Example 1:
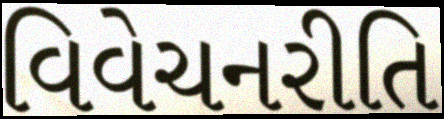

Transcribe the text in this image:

વિવેચનરીતિ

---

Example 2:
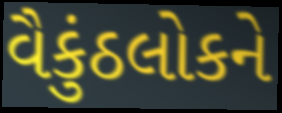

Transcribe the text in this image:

વૈકુંઠલોકને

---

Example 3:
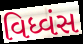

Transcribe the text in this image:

વિધ્વંસ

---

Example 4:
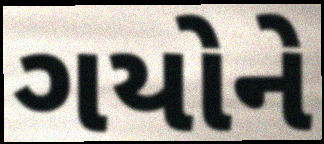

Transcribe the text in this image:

ગયોને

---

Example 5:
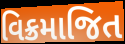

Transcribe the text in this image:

વિક્રમાજિત